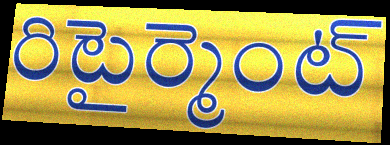
రిటైర్మెంట్